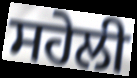
ਸਹੇਲੀ